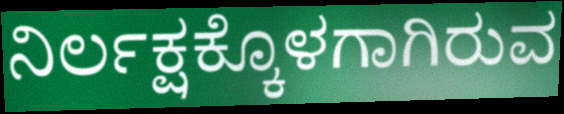
ನಿರ್ಲಕ್ಷಕ್ಕೊಳಗಾಗಿರುವ